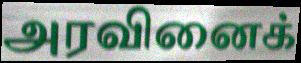
அரவினைக்